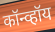
कॉन्व्हॉय